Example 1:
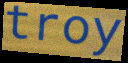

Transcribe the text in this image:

troy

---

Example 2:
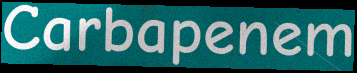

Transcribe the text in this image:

Carbapenem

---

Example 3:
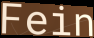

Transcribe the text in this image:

Fein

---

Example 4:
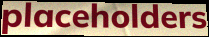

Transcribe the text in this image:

placeholders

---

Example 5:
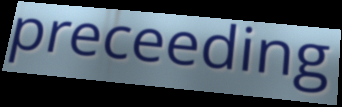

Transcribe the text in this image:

preceeding